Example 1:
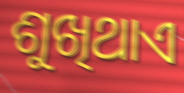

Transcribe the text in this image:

ଶୁଖିଥାଏ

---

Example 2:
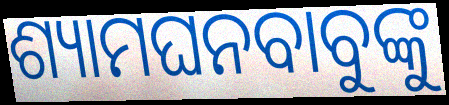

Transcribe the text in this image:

ଶ୍ୟାମଘନବାବୁଙ୍କୁ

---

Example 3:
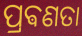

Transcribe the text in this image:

ପ୍ରଵଣତା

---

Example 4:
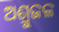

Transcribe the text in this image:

ଅଶ୍ରୁଜଳ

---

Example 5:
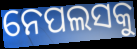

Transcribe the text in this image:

ନେପଲସକୁ